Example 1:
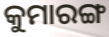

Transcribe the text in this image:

କୁମାରଙ୍ଗ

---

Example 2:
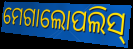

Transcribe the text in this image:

ମେଗାଲୋପଲିସ୍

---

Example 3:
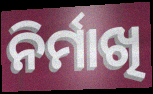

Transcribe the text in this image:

ନିର୍ମାଖି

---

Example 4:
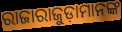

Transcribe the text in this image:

ରାଜାରାଜୁଡ଼ାମାନଙ୍କ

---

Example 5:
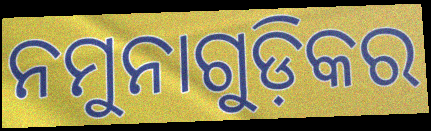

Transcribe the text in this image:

ନମୁନାଗୁଡ଼ିକର